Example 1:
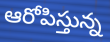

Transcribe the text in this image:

ఆరోపిస్తున్న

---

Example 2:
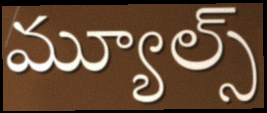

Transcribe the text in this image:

మ్యూల్స్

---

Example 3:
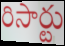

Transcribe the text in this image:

రిసార్టు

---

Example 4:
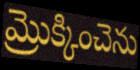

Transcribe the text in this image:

మ్రొక్కించెను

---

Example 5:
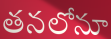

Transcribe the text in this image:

తనలోనూ